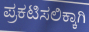
ಪ್ರಕಟಿಸಲಿಕ್ಕಾಗಿ